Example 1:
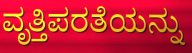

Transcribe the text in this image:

ವೃತ್ತಿಪರತೆಯನ್ನು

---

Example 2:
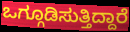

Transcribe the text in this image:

ಒಗ್ಗೂಡಿಸುತ್ತಿದ್ದಾರೆ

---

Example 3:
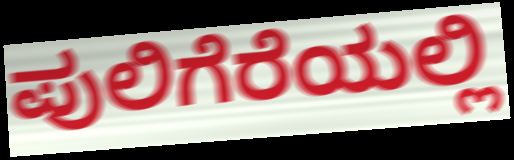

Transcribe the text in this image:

ಪುಲಿಗೆರೆಯಲ್ಲಿ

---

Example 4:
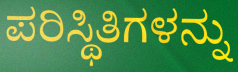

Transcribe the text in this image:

ಪರಿಸ್ಥಿತಿಗಳನ್ನು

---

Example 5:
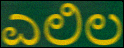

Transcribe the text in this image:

ಎಲಿಲ